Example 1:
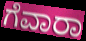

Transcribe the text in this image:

ಗೆವಾರಾ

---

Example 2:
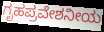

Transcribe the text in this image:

ಗೃಹಪ್ರವೇಶನೀಯ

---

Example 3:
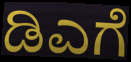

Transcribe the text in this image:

ಡಿಎಗೆ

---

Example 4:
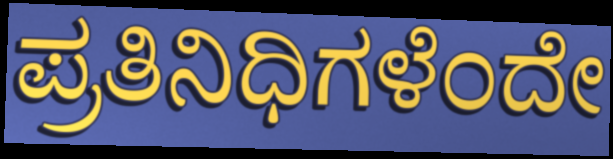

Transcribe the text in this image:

ಪ್ರತಿನಿಧಿಗಳೆಂದೇ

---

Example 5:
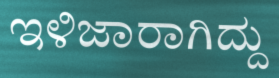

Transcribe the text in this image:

ಇಳಿಜಾರಾಗಿದ್ದು